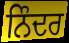
ਨਿੰਦਰ